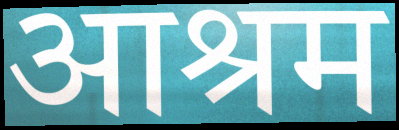
आश्रम